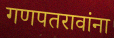
गणपतरावांना